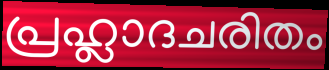
പ്രഹ്ലാദചരിതം